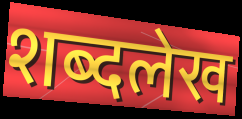
शब्दलेख